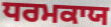
ਧਰਮਕਾਯ